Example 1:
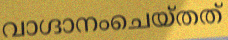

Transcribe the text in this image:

വാഗ്ദാനംചെയ്തത്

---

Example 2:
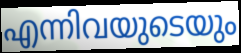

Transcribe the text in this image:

എന്നിവയുടെയും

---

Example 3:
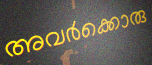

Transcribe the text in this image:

അവർക്കൊരു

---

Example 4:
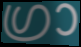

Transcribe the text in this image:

ഗ്രാ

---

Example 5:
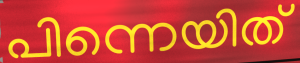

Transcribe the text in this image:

പിന്നെയിത്